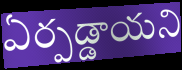
ఏర్పడ్డాయని